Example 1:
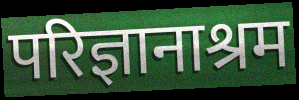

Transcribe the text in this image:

परिज्ञानाश्रम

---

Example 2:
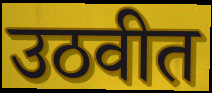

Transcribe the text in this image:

उठवीत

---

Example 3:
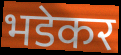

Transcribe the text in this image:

भडेकर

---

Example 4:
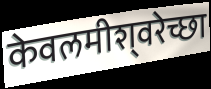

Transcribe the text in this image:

केवलमीश्वरेच्छा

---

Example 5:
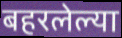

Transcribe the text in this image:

बहरलेल्या